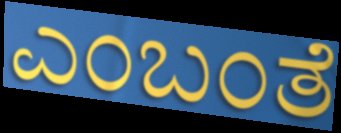
ಎಂಬಂತೆ